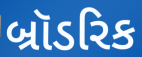
બ્રૉડરિક